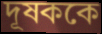
দূষককে